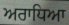
ਅਰਾਧਿਆ